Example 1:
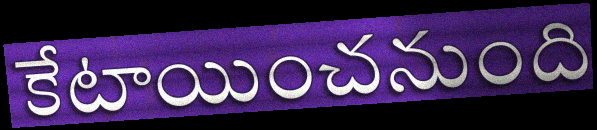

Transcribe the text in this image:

కేటాయించనుంది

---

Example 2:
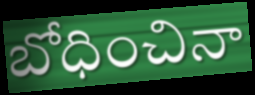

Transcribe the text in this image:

బోధించినా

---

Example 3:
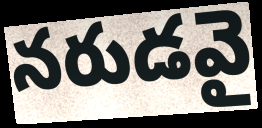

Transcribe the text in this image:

నరుడవై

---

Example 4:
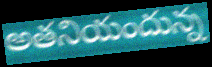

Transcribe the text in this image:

అతనియందున్న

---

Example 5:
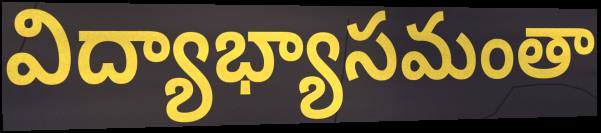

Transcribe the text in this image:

విద్యాభ్యాసమంతా